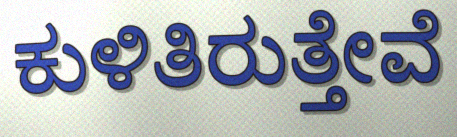
ಕುಳಿತಿರುತ್ತೇವೆ